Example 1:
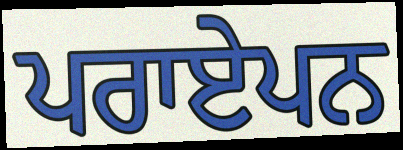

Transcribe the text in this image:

ਪਰਾਏਪਨ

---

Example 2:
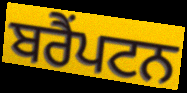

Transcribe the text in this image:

ਬਰੈਂਪਟਨ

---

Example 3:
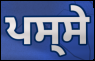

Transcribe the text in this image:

ਪਸ੍ਸੇ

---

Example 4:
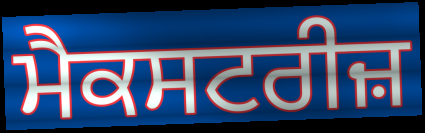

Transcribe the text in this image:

ਮੈਕਸਟਰੀਜ਼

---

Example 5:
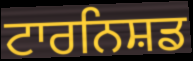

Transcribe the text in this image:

ਟਾਰਨਿਸ਼ਡ